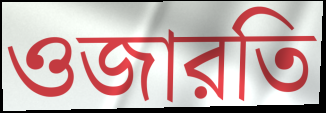
ওজারতি